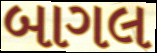
બાગલ